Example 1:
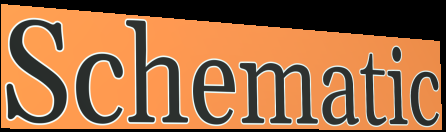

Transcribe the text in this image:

Schematic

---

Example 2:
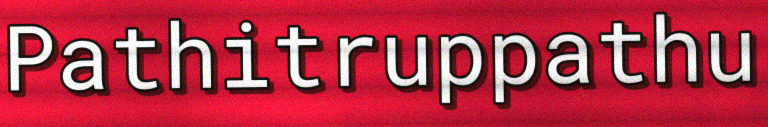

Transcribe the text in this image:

Pathitruppathu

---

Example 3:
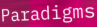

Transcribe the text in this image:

Paradigms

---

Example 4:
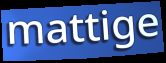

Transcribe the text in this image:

mattige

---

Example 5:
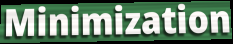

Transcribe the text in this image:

Minimization